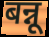
बन्नू